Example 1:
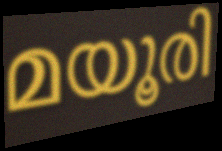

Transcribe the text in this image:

മയൂരി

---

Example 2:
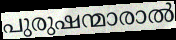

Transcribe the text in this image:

പുരുഷന്മാരാൽ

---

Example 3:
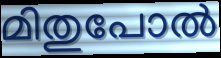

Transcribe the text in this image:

മിതുപോൽ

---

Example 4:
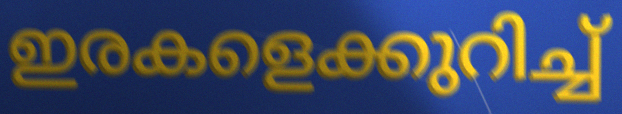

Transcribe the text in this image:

ഇരകളെക്കുറിച്ച്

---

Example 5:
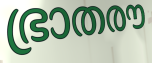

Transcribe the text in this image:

ഭ്രാതരൗ